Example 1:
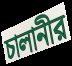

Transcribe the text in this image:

চালানীর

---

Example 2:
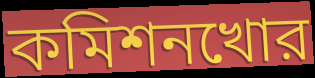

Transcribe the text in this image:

কমিশনখোর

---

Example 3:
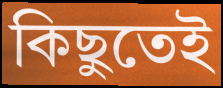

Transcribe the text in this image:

কিছুতেই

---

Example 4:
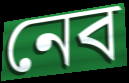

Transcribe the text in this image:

নেব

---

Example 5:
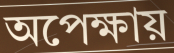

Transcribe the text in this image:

অপেক্ষায়